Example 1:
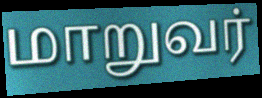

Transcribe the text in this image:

மாறுவர்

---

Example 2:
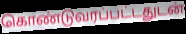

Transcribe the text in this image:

கொண்டுவரப்பட்டதுடன்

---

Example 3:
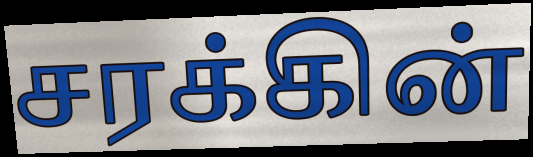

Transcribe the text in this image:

சரக்கின்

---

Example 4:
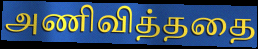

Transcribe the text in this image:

அணிவித்ததை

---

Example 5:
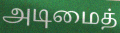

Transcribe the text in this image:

அடிமைத்